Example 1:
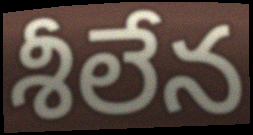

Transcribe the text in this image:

శీలేన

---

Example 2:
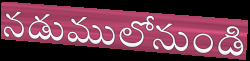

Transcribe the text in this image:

నడుములోనుండి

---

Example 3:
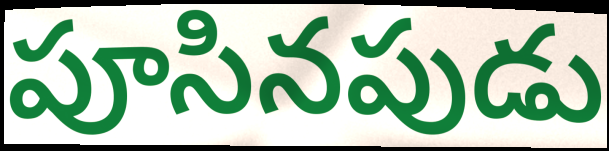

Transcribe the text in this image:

పూసినపుడు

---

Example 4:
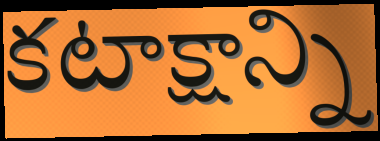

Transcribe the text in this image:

కటాక్షాన్ని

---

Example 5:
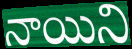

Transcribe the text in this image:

నాయిని